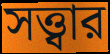
সত্ত্বার